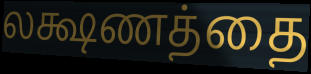
லக்ஷணத்தை